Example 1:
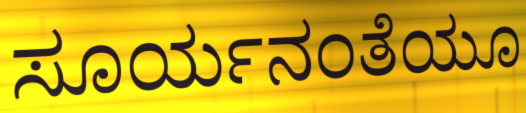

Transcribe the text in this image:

ಸೂರ್ಯನಂತೆಯೂ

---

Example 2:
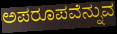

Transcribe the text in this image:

ಅಪರೂಪವೆನ್ನುವ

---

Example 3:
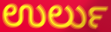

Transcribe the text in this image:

ಉರ್ಲು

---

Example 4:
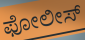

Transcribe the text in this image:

ಫೋಲೀಸ್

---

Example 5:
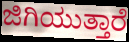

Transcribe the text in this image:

ಜಿಗಿಯುತ್ತಾರೆ